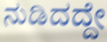
ನುಡಿದದ್ದೇ